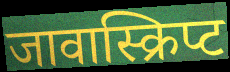
जावास्क्रिप्ट